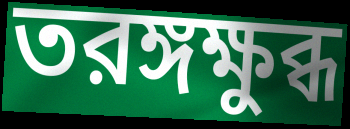
তরঙ্গক্ষুব্ধ